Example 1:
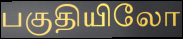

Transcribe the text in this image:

பகுதியிலோ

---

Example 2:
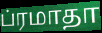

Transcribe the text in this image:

ப்ரமாதா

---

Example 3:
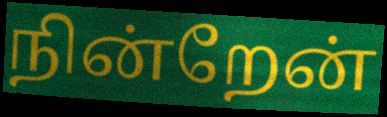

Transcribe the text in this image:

நின்றேன்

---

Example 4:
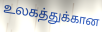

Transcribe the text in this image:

உலகத்துக்கான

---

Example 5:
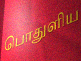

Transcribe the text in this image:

பொதுளிய